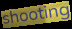
shooting